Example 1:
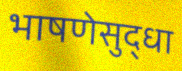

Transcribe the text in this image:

भाषणेसुद्धा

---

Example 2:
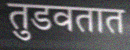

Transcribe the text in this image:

तुडवतात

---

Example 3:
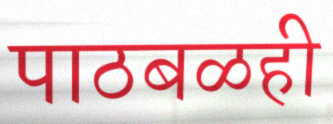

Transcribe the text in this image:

पाठबळही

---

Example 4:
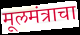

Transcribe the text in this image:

मूलमंत्राचा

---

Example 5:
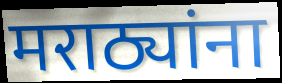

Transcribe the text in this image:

मराठ्यांना